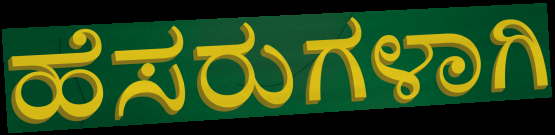
ಹೆಸರುಗಳಾಗಿ